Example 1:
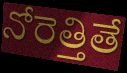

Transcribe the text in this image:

నోరెత్తితే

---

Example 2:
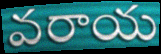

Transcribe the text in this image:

వరాయ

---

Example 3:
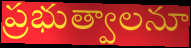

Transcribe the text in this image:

ప్రభుత్వాలనూ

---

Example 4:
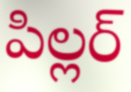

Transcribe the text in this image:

పిల్లర్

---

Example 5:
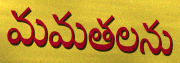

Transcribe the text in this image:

మమతలను